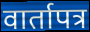
वार्तापत्र